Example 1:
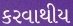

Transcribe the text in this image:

કરવાથીય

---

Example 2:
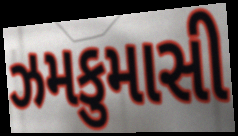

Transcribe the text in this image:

ઝમકુમાસી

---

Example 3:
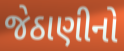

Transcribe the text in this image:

જેઠાણીનો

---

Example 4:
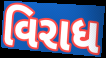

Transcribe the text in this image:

વિરાધ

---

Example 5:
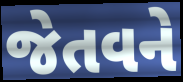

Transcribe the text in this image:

જેતવને